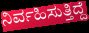
ನಿರ್ವಹಿಸುತ್ತಿದ್ದೆ